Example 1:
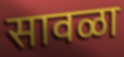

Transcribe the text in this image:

सावळा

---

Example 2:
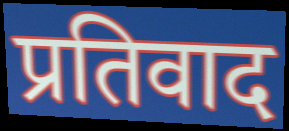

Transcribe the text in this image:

प्रतिवाद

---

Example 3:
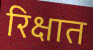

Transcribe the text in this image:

रिक्षात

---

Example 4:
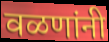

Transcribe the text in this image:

वळणांनी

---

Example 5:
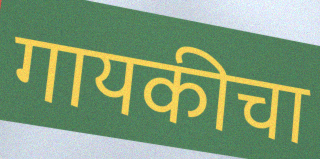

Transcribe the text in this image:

गायकीचा